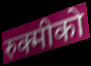
रुक्मीको